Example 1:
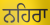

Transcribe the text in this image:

ਨਹਿਰਾ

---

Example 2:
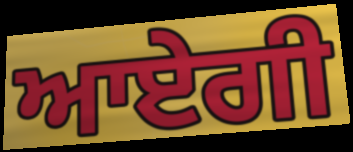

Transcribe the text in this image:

ਆਏਗੀ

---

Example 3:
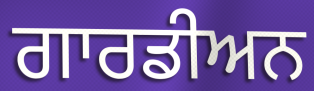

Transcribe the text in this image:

ਗਾਰਡੀਅਨ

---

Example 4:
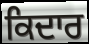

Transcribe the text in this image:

ਕਿਦਾਰ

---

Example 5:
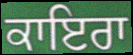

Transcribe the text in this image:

ਕਾਇਰਾ